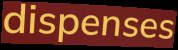
dispenses